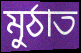
মুঠাত